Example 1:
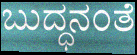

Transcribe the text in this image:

ಬುದ್ಧನಂತೆ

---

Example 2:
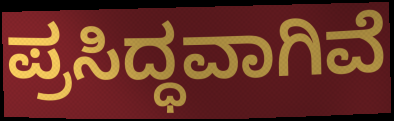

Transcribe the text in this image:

ಪ್ರಸಿದ್ಧವಾಗಿವೆ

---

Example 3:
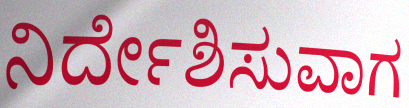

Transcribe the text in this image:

ನಿರ್ದೇಶಿಸುವಾಗ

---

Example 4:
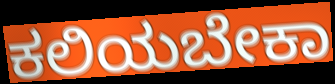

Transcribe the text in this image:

ಕಲಿಯಬೇಕಾ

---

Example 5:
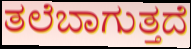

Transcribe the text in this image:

ತಲೆಬಾಗುತ್ತದೆ